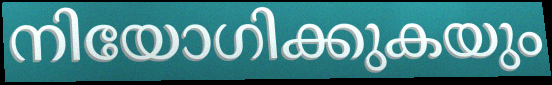
നിയോഗിക്കുകയും